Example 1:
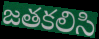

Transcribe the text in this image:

జతకలిసి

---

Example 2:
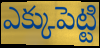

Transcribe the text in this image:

ఎక్కుపెట్టి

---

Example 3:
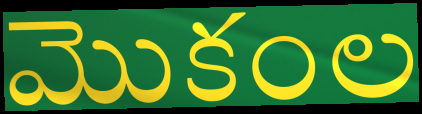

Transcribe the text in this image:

మొకంల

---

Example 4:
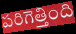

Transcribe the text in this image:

పరిగెత్తింది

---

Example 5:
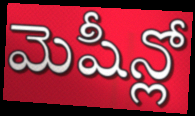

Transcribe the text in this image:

మెషీన్లో